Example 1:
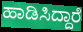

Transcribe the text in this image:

ಹಾಡಿಸಿದ್ದಾರೆ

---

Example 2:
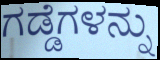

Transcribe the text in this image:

ಗಡ್ಡೆಗಳನ್ನು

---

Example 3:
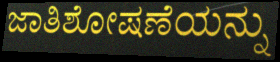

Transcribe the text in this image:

ಜಾತಿಶೋಷಣೆಯನ್ನು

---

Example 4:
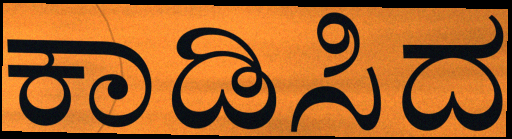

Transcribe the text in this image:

ಕಾಡಿಸಿದ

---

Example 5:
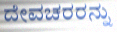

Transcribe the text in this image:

ದೇವಚರರನ್ನು